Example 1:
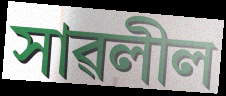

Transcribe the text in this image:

সাৱলীল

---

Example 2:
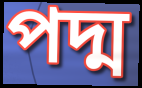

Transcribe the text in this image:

পদ্ম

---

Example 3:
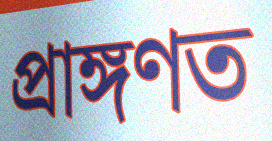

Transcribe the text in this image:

প্ৰাঙ্গণত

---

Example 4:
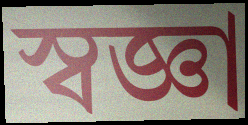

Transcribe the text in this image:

স্বজ্ঞা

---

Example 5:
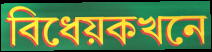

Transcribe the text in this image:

বিধেয়কখনে